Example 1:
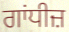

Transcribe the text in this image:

ਗਾਂਧੀਜ਼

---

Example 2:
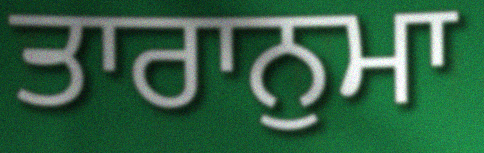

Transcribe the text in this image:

ਤਾਰਾਨੁਮਾ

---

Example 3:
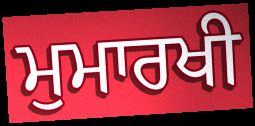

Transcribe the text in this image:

ਮੁਮਾਰਖੀ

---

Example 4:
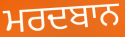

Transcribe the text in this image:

ਮਰਦਬਾਨ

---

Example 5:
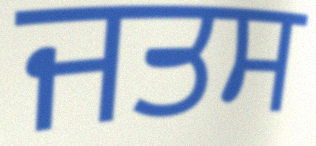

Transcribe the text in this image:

ਜਤਸ